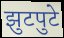
झुटपुटे